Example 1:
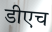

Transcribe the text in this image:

डीएच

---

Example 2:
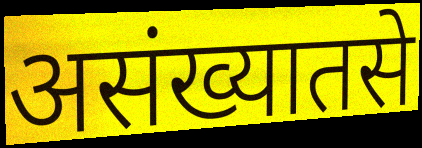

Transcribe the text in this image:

असंख्यातसे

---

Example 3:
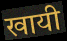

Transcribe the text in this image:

खायी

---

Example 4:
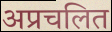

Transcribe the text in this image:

अप्रचलित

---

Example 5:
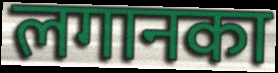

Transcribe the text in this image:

लगानका